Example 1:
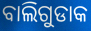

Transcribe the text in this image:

ବାଲିଗୁଡାକ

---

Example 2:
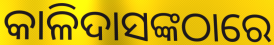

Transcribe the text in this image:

କାଳିଦାସଙ୍କଠାରେ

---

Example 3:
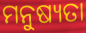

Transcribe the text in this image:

ମନୁଷ୍ୟତା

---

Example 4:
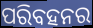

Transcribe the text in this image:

ପରିବହନର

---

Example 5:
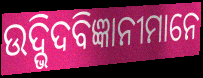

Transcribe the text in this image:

ଉଦ୍ଭିଦବିଜ୍ଞାନୀମାନେ